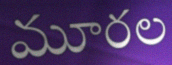
మూరల